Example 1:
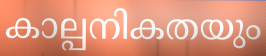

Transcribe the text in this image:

കാല്പനികതയും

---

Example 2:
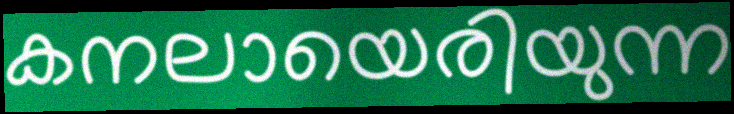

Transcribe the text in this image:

കനലായെരിയുന്ന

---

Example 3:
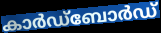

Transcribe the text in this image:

കാർഡ്ബോർഡ്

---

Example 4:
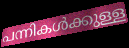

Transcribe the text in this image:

പന്നികൾക്കുള്ള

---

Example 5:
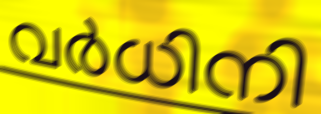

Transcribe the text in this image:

വർധിനി